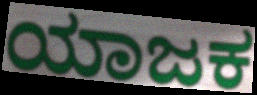
ಯಾಜಕ